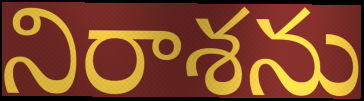
నిరాశను